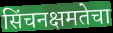
सिंचनक्षमतेचा